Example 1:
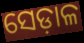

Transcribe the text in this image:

ସେଡ଼ାଳ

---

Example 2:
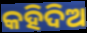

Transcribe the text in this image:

କହିଦିଅ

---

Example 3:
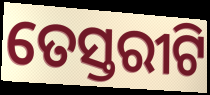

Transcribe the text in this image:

ତେସ୍ତରୀଟି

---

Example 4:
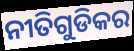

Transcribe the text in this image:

ନୀତିଗୁଡିକର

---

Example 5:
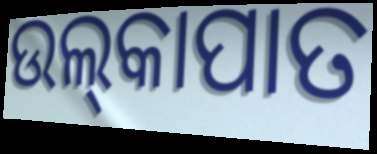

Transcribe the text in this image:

ଉଲ୍‍କାପାତ